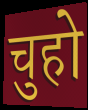
चुहो